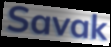
Savak